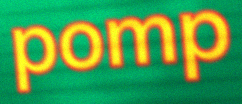
pomp